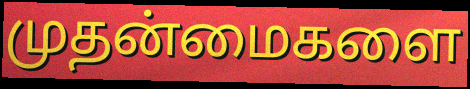
முதன்மைகளை